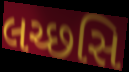
લચ્છસિ